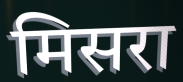
मिसरा